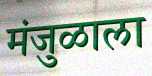
मंजुळाला